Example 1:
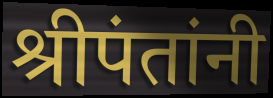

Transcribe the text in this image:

श्रीपंतांनी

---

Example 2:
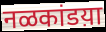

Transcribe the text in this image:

नळकांडय़ा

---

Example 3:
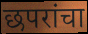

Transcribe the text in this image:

छपरांचा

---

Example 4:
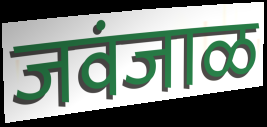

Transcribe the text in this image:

जवंजाळ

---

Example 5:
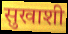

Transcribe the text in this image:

सुखाशी